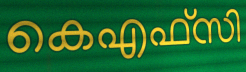
കെഎഫ്സി